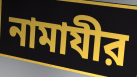
নামাযীর